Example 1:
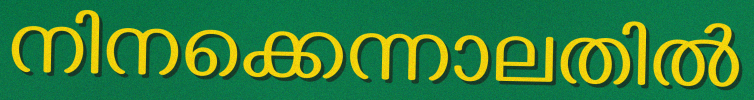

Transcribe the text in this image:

നിനക്കെന്നാലതിൽ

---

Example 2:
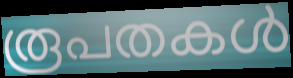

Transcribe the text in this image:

രൂപതകൾ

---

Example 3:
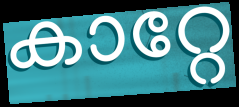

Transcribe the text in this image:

കാറ്റേ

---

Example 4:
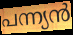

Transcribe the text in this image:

പന്ന്യൻ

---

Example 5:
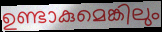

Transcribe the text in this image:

ഉണ്ടാകുമെങ്കിലും